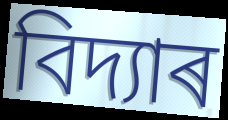
বিদ্যাৰ